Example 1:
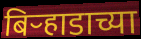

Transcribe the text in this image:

बिऱ्हाडाच्या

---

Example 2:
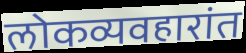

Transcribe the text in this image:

लोकव्यवहारांत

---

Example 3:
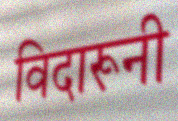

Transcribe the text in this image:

विदारूनी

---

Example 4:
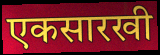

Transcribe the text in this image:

एकसारखी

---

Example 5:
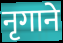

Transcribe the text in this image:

नृगाने